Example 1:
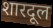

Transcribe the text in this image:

शारदूल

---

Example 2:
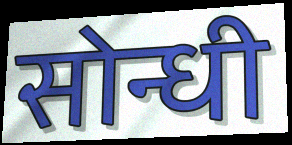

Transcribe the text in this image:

सोन्धी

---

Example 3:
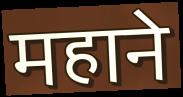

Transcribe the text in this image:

महाने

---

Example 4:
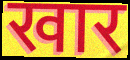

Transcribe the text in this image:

खार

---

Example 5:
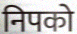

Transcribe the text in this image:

निपको